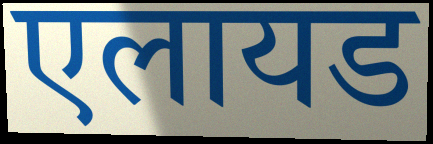
एलायड